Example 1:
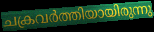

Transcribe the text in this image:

ചക്രവർത്തിയായിരുന്നു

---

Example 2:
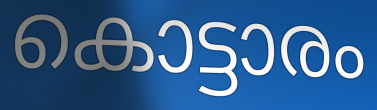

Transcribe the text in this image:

കൊട്ടാരം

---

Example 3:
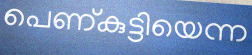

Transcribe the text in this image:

പെണ്കുട്ടിയെന്ന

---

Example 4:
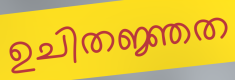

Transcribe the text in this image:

ഉചിതജ്ഞത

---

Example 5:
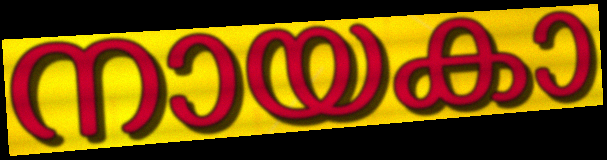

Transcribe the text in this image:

നായകാ